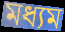
মধ্যম